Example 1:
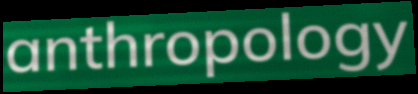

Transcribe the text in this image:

anthropology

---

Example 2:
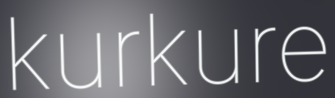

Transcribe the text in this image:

kurkure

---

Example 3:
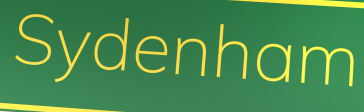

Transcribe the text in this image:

Sydenham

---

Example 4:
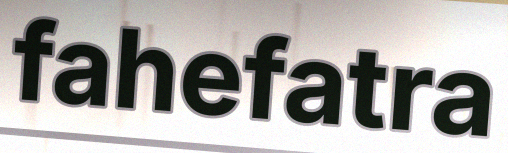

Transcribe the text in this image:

fahefatra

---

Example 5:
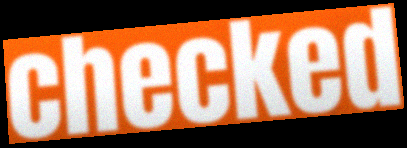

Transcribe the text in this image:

checked